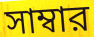
সাম্বার